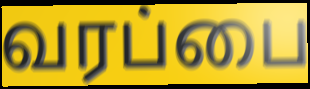
வரப்பை